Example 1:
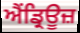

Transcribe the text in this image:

ਐਂਡ੍ਰਿਊਜ਼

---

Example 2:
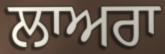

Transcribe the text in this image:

ਲਾਅਰਾ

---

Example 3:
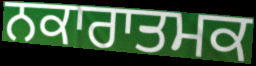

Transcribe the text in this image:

ਨਕਾਰਾਤਮਕ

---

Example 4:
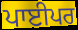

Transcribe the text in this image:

ਪਾਈਪਰ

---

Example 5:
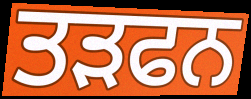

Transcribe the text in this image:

ਤੜਫਨ